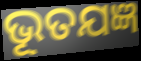
ଭୂତଯଜ୍ଞ